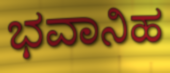
ಭವಾನಿಹ